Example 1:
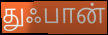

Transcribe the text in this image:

துஃபான்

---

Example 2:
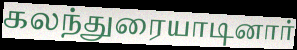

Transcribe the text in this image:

கலந்துரையாடினார்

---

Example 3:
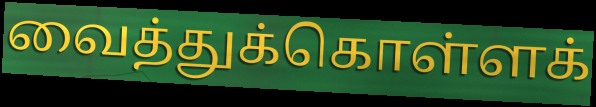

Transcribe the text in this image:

வைத்துக்கொள்ளக்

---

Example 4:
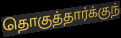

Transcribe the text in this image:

தொகுத்தார்க்குந்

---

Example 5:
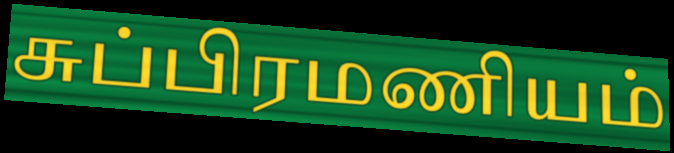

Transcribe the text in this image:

சுப்பிரமணியம்